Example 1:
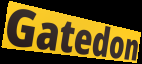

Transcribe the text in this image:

Gatedon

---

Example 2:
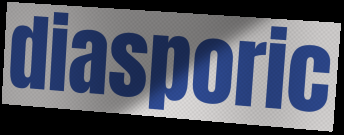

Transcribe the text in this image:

diasporic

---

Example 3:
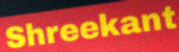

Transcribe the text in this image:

Shreekant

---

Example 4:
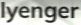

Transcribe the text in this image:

Iyenger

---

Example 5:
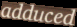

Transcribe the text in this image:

adduced